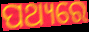
ପଥ୍ୟରେ